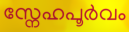
സ്നേഹപൂർവം